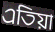
এতিয়া